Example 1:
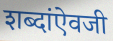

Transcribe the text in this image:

शब्दांऐवजी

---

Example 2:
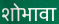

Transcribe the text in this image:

शोभावा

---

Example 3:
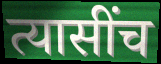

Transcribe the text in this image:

त्यासींच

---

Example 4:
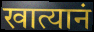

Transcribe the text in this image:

खात्यानं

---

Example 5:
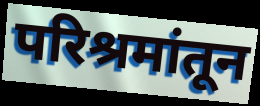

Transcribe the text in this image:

परिश्रमांतून